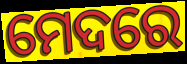
ମେଦରେ